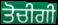
ਤੋਚੀਗੀ